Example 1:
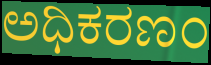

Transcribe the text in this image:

ಅಧಿಕರಣಂ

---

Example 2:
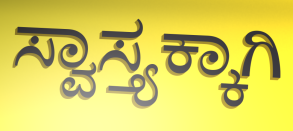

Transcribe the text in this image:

ಸ್ವಾಸ್ತ್ಯಕ್ಕಾಗಿ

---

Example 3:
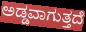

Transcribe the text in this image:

ಅಡ್ಡವಾಗುತ್ತದೆ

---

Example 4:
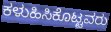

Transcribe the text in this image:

ಕಳುಹಿಸಿಕೊಟ್ಟವರು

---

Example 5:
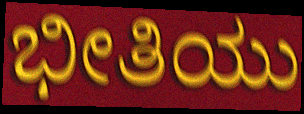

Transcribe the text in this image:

ಭೀತಿಯು